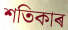
শতিকাৰ